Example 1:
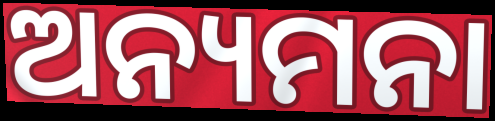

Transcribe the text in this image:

ଅନ୍ୟମନା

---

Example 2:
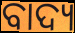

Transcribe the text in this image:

ବାଦ୍ଯ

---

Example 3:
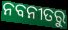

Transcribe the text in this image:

ନବନୀତରୁ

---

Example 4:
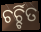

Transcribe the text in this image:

ଚର୍ଚ୍ଚିତ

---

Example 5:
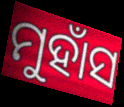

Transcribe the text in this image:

ମୁହାଁସ